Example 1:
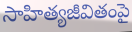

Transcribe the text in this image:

సాహిత్యజీవితంపై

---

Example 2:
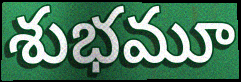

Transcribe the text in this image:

శుభమూ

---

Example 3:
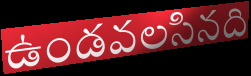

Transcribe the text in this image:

ఉండవలసినది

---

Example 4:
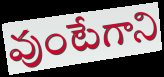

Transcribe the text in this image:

వుంటేగాని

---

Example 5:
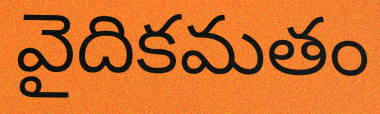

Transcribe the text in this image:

వైదికమతం